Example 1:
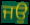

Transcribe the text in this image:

ਜਉ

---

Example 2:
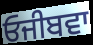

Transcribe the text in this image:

ਓਜੀਬਵਾ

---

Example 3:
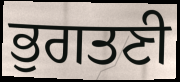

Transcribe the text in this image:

ਭੁਗਤਣੀ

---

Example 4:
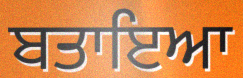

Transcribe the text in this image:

ਬਤਾਇਆ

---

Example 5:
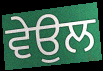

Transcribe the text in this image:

ਵੇਉਲ